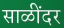
साळींदर